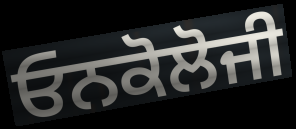
ਓਨਕੋਲੋਜੀ